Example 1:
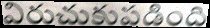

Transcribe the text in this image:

విరుచుకుపడింది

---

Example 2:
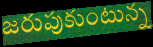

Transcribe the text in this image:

జరుపుకుంటున్న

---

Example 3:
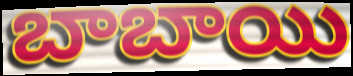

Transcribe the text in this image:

బాబాయి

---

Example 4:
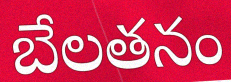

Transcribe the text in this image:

బేలతనం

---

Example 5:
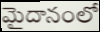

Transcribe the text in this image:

మైదానంలో